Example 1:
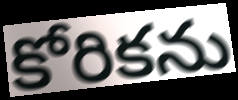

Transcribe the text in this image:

కోరికను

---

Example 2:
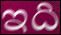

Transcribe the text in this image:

ఇది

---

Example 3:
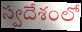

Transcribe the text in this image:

స్వదేశంలో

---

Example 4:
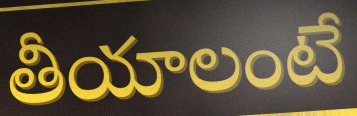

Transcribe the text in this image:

తీయాలంటే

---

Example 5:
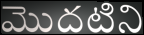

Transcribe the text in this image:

మొదటిని